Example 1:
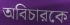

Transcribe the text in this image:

অবিচারকে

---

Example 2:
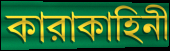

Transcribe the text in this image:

কারাকাহিনী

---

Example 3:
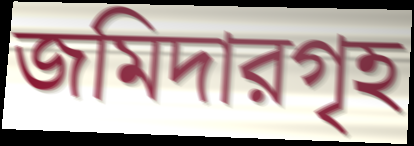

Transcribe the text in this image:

জমিদারগৃহ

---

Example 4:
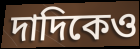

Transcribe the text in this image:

দাদিকেও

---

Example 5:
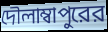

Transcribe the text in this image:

দৌলাম্বাপুরের